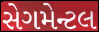
સેગમેન્ટલ